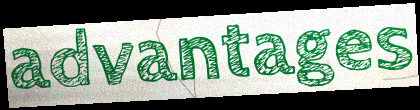
advantages